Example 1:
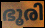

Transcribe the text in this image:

ഭൂരി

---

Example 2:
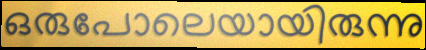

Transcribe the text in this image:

ഒരുപോലെയായിരുന്നു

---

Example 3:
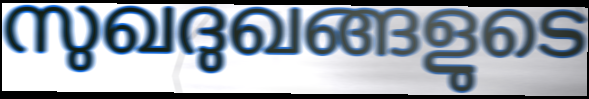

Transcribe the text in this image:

സുഖദുഖങ്ങളുടെ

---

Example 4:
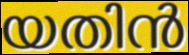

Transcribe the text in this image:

യതിൻ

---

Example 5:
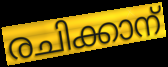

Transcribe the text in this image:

രചിക്കാന്